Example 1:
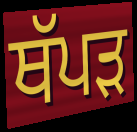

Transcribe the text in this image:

ਥੱਪੜ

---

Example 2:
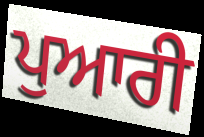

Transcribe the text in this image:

ਪੁਆਰੀ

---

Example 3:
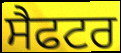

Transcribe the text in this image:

ਸੈਫਟਰ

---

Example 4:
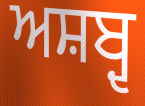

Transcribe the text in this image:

ਅਸ਼ਬ੍ਦ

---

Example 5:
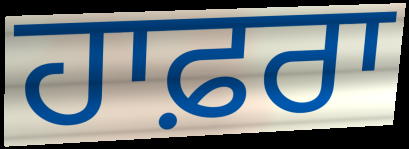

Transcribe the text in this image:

ਹਾਫ਼ਰਾ